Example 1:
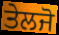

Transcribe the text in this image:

ਤੇਲਜੋ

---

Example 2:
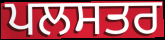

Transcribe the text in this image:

ਪਲਸਤਰ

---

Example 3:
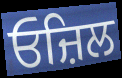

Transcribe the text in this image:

ਓਜ਼ਿਲ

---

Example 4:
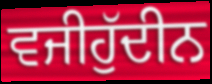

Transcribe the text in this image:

ਵਜੀਹੁੱਦੀਨ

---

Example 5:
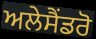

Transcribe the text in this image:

ਅਲੇਸੈਂਡਰੋ